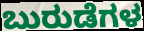
ಬುರುಡೆಗಳ